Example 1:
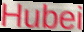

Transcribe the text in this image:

Hubei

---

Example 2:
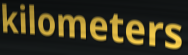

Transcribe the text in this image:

kilometers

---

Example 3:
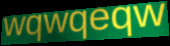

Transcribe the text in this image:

wqwqeqw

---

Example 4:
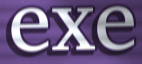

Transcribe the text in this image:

exe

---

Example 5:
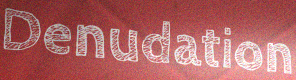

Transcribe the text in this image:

Denudation